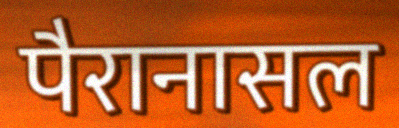
पैरानासल